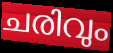
ചരിവും